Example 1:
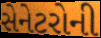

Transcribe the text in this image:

સેનેટરોની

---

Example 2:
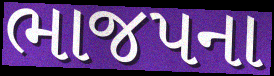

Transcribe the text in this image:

ભાજપના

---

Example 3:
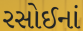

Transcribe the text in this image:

રસોઈનાં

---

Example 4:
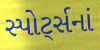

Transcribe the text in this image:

સ્પોર્ટ્સનાં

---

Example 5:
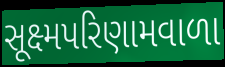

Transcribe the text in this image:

સૂક્ષ્મપરિણામવાળા